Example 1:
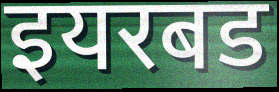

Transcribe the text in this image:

इयरबड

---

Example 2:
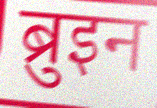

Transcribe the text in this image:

ब्रुइन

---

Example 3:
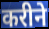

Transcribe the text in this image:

करीने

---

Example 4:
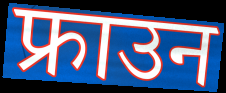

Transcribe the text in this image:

फ्राउन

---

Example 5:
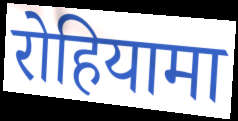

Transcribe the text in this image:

रोहियामा